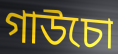
গাউচো